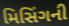
મિસિંગની